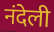
नंदेली